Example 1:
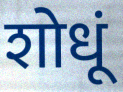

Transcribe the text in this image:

शोधूं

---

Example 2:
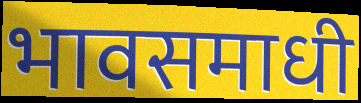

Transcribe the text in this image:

भावसमाधी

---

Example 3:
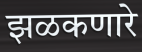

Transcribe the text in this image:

झळकणारे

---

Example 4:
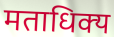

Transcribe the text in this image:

मताधिक्‍य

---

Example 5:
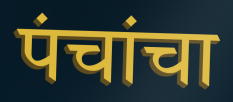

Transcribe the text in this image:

पंचांचा